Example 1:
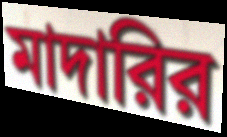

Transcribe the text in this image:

মাদারির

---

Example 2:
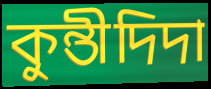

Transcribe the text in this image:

কুন্তীদিদা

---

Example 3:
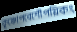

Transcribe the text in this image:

কৃষ্ণোপবেশৌপয়িকং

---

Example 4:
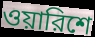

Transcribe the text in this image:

ওয়ারিশে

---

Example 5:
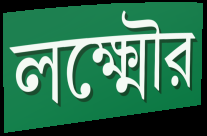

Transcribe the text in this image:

লক্ষ্মৌর